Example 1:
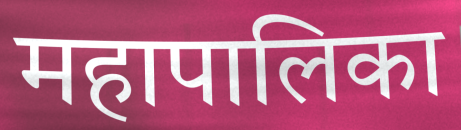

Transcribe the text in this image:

महापालिका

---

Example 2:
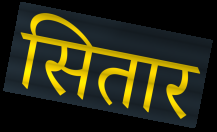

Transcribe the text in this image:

सितार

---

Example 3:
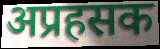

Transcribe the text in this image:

अप्रहसक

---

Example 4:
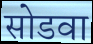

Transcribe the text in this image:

सोडवा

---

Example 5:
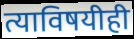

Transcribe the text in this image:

त्याविषयीही